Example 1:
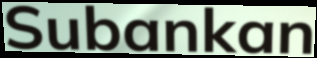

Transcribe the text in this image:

Subankan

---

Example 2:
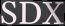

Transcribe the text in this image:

SDX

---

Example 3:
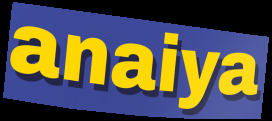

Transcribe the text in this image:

anaiya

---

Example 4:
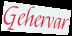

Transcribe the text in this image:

Gehervar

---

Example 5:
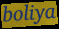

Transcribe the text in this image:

boliya